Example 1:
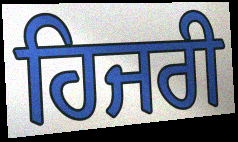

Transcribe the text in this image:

ਹਿਜਰੀ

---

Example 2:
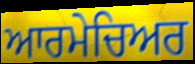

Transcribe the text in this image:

ਆਰਮੇਚਿਅਰ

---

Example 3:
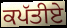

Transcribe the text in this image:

ਕਪੱਤੀਏ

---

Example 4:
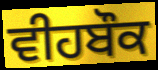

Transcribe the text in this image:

ਵੀਹਬੌਕ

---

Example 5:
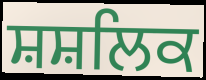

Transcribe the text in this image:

ਸ਼ਸ਼ਲਿਕ